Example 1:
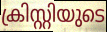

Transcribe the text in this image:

ക്രിസ്റ്റിയുടെ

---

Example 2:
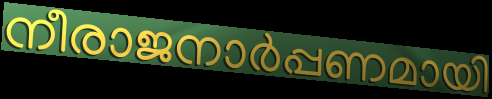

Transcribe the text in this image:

നീരാജനാർപ്പണമായി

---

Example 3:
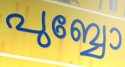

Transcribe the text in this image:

പുബ്ബോ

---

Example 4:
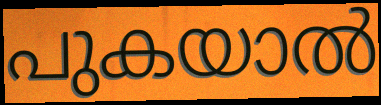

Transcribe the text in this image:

പുകയാൽ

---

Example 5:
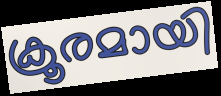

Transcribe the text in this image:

ക്രൂരമായി